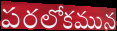
పరలోకమున